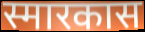
स्मारकास